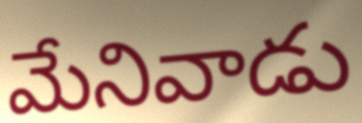
మేనివాడు